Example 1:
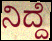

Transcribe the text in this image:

ನಿದ್ದೆ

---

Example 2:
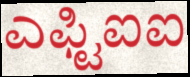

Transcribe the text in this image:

ಎಫ್ಟಿಐಐ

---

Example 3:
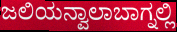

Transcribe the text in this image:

ಜಲಿಯನ್ವಾಲಾಬಾಗ್ನಲ್ಲಿ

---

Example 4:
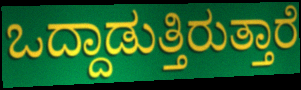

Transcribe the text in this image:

ಒದ್ದಾಡುತ್ತಿರುತ್ತಾರೆ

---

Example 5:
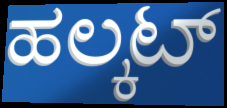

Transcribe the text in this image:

ಹಲ್ಕಟ್